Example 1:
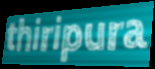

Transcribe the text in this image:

thiripura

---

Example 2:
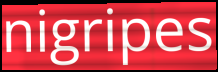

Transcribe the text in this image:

nigripes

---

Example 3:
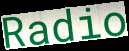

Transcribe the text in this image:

Radio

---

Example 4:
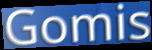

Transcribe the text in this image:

Gomis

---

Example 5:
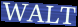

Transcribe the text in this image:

WALT